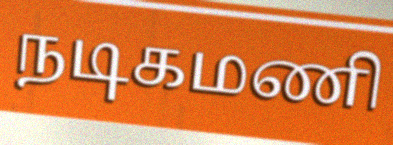
நடிகமணி